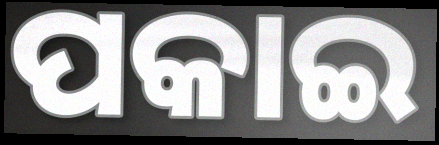
ପକାଇ